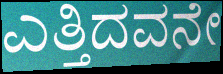
ಎತ್ತಿದವನೇ